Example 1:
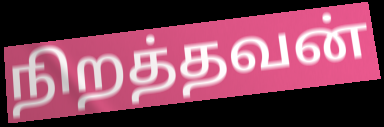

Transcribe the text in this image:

நிறத்தவன்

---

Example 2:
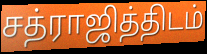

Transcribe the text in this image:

சத்ராஜித்திடம்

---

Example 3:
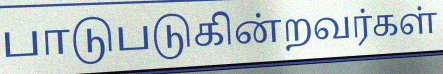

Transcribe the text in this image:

பாடுபடுகின்றவர்கள்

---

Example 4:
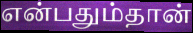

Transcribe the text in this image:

என்பதும்தான்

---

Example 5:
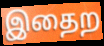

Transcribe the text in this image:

இதைற